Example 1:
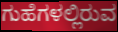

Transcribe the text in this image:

ಗುಹೆಗಳಲ್ಲಿರುವ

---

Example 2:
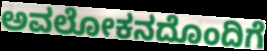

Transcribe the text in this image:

ಅವಲೋಕನದೊಂದಿಗೆ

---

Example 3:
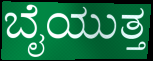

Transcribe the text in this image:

ಬೈಯುತ್ತ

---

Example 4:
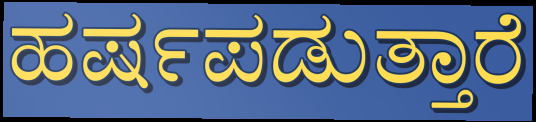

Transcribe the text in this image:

ಹರ್ಷಪಡುತ್ತಾರೆ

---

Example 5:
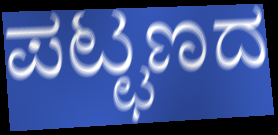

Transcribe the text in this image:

ಪಟ್ಟಣದ